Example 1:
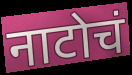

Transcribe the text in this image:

नाटोचं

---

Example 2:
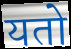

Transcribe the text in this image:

यतो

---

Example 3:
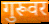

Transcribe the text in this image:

गुरूवर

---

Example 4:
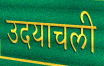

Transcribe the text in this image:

उदयाचली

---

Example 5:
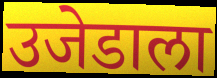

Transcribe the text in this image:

उजेडाला